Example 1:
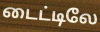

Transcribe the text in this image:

டைட்டிலே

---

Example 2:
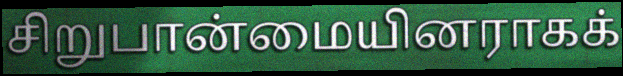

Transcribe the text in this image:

சிறுபான்மையினராகக்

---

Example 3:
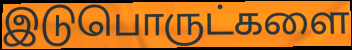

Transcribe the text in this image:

இடுபொருட்களை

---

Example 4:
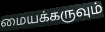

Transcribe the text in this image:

மையக்கருவும்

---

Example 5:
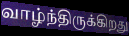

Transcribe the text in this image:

வாழ்ந்திருக்கிறது